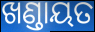
ଖଣ୍ଡାୟତ